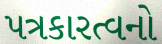
પત્રકારત્વનો